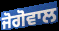
ਜੋਗੋਵਾਲ